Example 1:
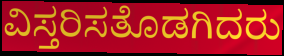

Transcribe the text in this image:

ವಿಸ್ತರಿಸತೊಡಗಿದರು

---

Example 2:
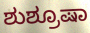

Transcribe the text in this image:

ಶುಶ್ರೂಷಾ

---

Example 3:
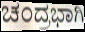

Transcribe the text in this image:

ಚಂದ್ರಭಾಗಿ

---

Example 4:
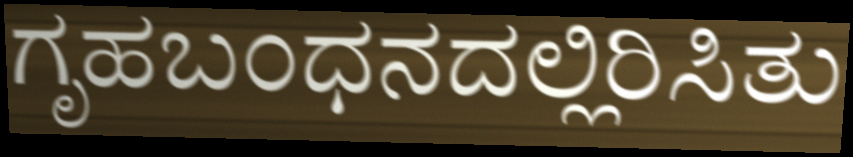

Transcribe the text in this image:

ಗೃಹಬಂಧನದಲ್ಲಿರಿಸಿತು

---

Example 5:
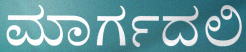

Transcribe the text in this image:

ಮಾರ್ಗದಲಿ